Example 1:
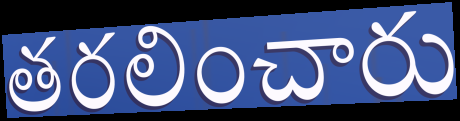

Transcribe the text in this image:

తరలించారు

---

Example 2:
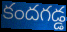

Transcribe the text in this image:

కందగడ్డ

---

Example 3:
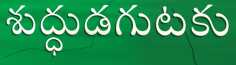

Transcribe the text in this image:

శుద్ధుడగుటకు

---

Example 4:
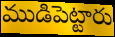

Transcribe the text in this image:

ముడిపెట్టారు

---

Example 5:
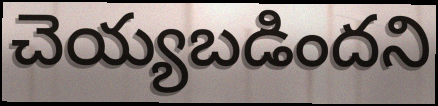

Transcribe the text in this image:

చెయ్యబడిందని